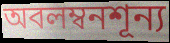
অবলম্বনশূন্য